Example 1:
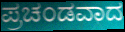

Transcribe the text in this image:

ಪ್ರಚಂಡವಾದ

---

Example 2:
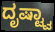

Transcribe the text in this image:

ದೃಷ್ಟ್ವಾ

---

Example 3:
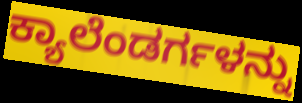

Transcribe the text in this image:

ಕ್ಯಾಲೆಂಡರ್ಗಳನ್ನು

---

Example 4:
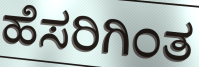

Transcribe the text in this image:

ಹೆಸರಿಗಿಂತ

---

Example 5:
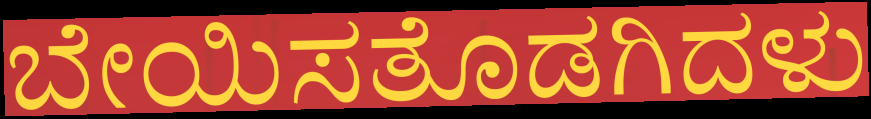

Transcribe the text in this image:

ಬೇಯಿಸತೊಡಗಿದಳು